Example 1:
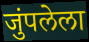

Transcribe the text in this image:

जुंपलेला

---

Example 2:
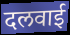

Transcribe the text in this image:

दलवाई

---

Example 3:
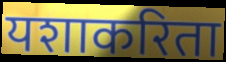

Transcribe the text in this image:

यशाकरिता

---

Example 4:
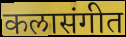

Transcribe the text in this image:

कलासंगीत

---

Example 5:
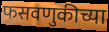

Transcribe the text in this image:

फसवणुकीच्या